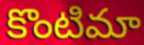
కొంటిమా